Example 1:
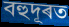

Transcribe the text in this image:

বহুদূৰত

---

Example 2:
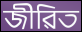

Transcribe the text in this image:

জীৱিত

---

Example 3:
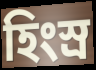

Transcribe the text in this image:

হিংস্ৰ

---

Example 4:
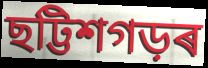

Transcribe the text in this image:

ছট্টিশগড়ৰ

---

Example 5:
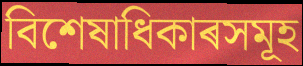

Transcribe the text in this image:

বিশেষাধিকাৰসমূহ